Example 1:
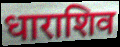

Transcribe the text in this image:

धाराशिव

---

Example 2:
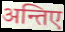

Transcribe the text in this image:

अन्तिए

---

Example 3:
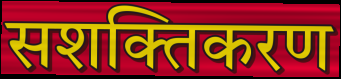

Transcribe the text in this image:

सशक्तिकरण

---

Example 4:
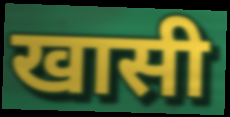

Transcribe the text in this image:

खासी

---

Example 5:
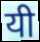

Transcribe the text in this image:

यी